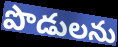
పొడులను